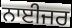
ਨਾਈਜਰ